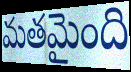
మతమైంది